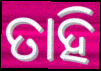
ତାହି